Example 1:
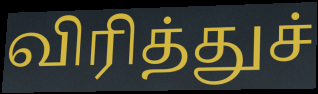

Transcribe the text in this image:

விரித்துச்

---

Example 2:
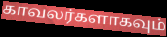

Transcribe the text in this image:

காவலர்களாகவும்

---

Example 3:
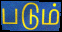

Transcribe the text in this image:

படும்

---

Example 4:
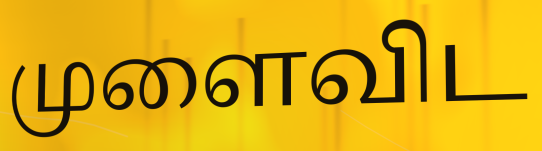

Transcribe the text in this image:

முளைவிட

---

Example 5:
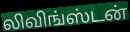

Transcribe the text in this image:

லிவிங்ஸ்டன்